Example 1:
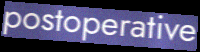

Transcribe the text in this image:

postoperative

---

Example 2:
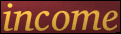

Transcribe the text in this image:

income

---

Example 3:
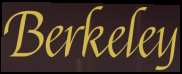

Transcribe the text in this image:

Berkeley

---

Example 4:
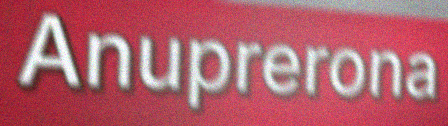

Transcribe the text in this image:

Anuprerona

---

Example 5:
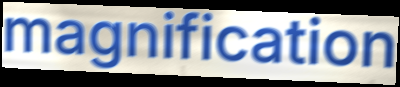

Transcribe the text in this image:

magnification